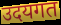
उदयगत